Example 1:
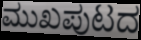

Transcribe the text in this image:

ಮುಖಪುಟದ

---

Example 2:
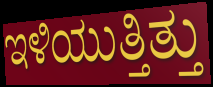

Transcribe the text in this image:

ಇಳಿಯುತ್ತಿತ್ತು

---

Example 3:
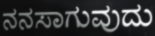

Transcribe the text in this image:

ನನಸಾಗುವುದು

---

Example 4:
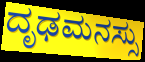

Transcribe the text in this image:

ದೃಢಮನಸ್ಸು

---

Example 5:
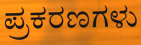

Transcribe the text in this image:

ಪ್ರಕರಣಗಳು